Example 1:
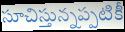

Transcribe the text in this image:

సూచిస్తున్నప్పటికీ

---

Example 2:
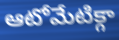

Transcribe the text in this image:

ఆటోమేటిక్గా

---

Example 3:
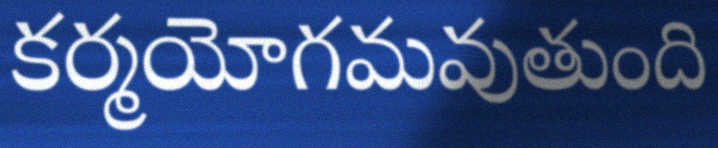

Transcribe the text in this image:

కర్మయోగమవుతుంది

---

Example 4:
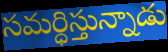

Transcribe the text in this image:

సమర్ధిస్తున్నాడు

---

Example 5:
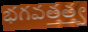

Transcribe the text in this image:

భగవత్తత్త్వ